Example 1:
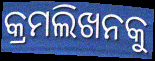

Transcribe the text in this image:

କ୍ରମଲିଖନକୁ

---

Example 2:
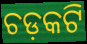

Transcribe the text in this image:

ଚଡ଼କଟି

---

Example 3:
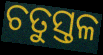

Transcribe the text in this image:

ଚତୁସ୍ତଳ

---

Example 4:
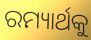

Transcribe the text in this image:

ରମ୍ୟାର୍ଥକୁ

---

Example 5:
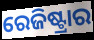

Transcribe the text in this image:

ରେଜିଷ୍ଟ୍ରାର